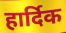
हार्दिक